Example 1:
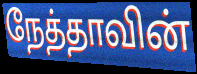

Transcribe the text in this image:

நேத்தாவின்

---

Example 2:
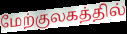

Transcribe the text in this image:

மேற்குலகத்தில்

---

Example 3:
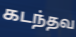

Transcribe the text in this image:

கடந்தவ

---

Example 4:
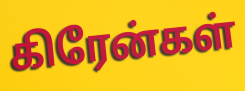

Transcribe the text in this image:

கிரேன்கள்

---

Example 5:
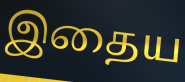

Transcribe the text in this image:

இதைய